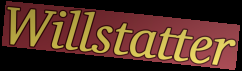
Willstatter